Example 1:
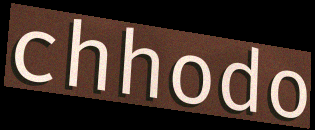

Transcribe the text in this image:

chhodo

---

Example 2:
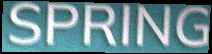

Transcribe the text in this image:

SPRING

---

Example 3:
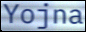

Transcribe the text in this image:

Yojna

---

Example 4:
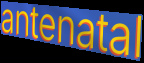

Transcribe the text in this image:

antenatal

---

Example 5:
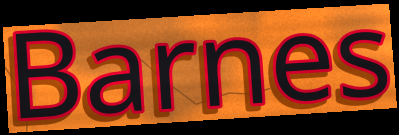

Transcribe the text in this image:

Barnes